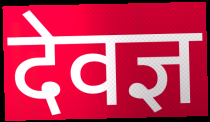
देवज्ञ